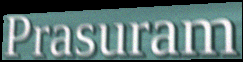
Prasuram